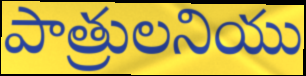
పాత్రులనియు